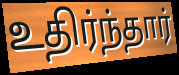
உதிர்ந்தார்